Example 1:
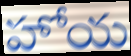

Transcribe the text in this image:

హోయ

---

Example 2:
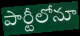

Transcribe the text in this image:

పార్టీలోనూ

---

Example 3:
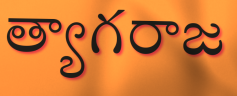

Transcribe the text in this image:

త్యాగరాజ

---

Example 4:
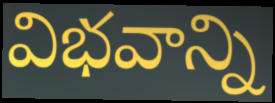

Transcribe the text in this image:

విభవాన్ని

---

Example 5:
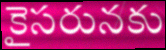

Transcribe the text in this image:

కైసరునకు